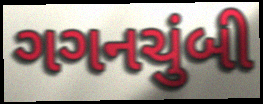
ગગનચુંબી